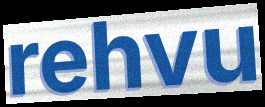
rehvu